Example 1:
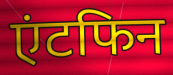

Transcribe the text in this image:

एंटफिन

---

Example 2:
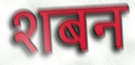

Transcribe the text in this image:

शबन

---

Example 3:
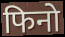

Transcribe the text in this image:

फिनो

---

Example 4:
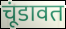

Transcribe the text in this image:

चूंडावत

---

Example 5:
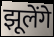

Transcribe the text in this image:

झूलेंगे